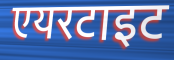
एयरटाइट